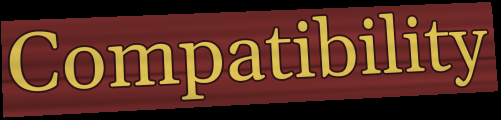
Compatibility